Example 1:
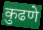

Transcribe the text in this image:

कुढणे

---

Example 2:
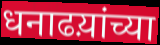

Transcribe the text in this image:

धनाढय़ांच्या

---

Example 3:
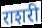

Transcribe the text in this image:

राशरी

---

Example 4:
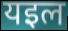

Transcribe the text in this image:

यइल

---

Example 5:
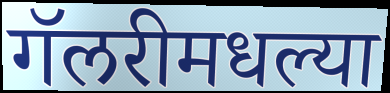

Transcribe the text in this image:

गॅलरीमधल्या